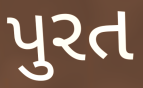
પુરત